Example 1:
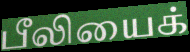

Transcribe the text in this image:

பீலியைக்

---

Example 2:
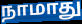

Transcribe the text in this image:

நாமாது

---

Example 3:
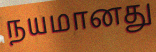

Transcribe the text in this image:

நயமானது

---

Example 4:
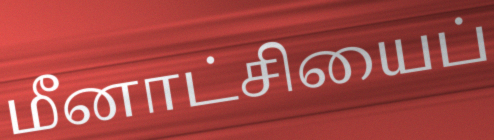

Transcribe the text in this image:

மீனாட்சியைப்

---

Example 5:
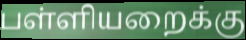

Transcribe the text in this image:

பள்ளியறைக்கு